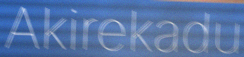
Akirekadu